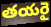
తయరై